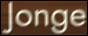
Jonge